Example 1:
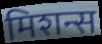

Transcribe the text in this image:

मिशन्स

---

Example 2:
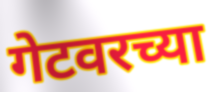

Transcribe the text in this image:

गेटवरच्या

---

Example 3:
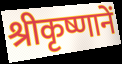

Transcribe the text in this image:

श्रीकृष्णानें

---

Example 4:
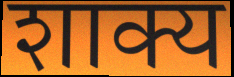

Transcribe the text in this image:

शाक्य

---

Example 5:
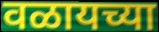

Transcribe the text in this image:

वळायच्या